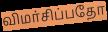
விமர்சிப்பதோ